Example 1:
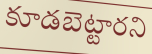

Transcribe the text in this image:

కూడబెట్టారని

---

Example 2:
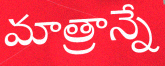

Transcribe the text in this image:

మాత్రాన్నే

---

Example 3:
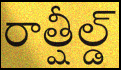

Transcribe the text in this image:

రాత్షీల్డ్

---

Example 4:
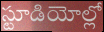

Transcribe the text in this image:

స్టూడియోల్లో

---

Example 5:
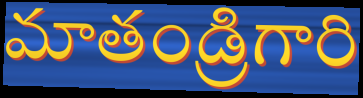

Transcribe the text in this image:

మాతండ్రిగారి